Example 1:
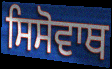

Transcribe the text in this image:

ਸਿਸੋਵਾਥ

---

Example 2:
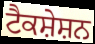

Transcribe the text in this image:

ਟੈਕਸ਼ੇਸ਼ਨ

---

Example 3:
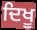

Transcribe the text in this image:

ਦਿਖੂ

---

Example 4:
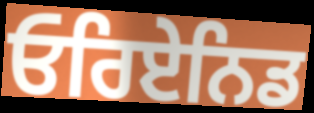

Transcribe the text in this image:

ਓਰਿਏਨਿਡ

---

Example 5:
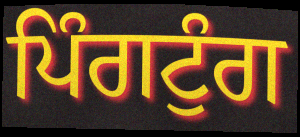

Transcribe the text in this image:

ਪਿੰਗਟੁੰਗ